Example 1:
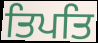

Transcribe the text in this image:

ਤਿਪਤਿ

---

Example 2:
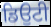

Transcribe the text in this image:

ਡਿਉਟੀ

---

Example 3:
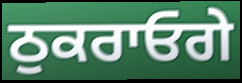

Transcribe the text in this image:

ਠੁਕਰਾਓਗੇ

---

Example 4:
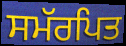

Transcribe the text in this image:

ਸਮੱਰਪਿਤ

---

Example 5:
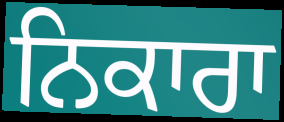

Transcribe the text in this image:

ਨਿਕਾਰਾ